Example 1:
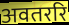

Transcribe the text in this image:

अवतररि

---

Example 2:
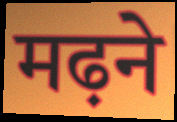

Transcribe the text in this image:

मढ़ने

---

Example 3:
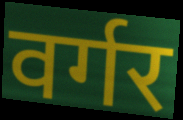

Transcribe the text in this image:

वर्गर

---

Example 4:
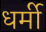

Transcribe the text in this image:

धर्मी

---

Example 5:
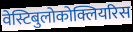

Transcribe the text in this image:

वेस्टिबुलोकोक्लियरिस